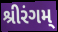
શ્રીરંગમ્